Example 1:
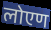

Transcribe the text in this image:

लोएण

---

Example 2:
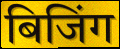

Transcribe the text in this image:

बिजिंग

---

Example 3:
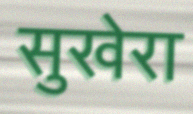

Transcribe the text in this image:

सुखेरा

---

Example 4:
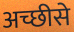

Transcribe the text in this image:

अच्छीसे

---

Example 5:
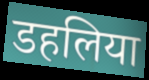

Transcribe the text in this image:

डहलिया